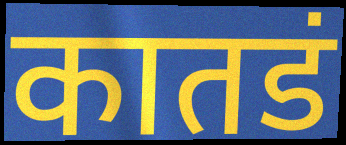
कातडं